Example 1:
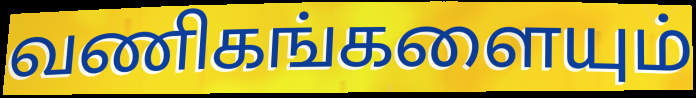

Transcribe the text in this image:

வணிகங்களையும்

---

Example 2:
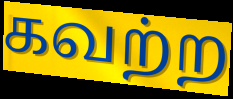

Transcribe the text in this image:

கவற்ற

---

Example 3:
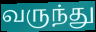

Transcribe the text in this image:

வருந்து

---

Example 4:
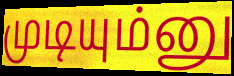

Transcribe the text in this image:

முடியும்னு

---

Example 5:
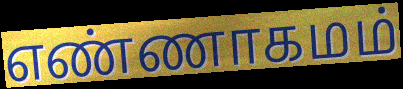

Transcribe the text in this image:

எண்ணாகமம்